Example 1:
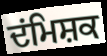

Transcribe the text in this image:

ਦਂਮਿਸ਼ਕ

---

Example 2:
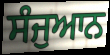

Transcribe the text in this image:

ਸੰਜੁਆਨ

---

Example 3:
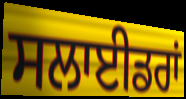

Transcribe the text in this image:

ਸਲਾਈਡਰਾਂ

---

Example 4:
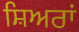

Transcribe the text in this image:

ਸ਼ਿਅਰਾਂ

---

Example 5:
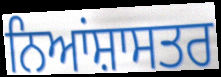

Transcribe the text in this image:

ਨਿਆਂਸ਼ਾਸਤਰ